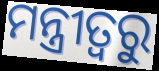
ମନ୍ତ୍ରୀତ୍ୱରୁ